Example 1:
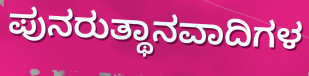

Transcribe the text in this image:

ಪುನರುತ್ಥಾನವಾದಿಗಳ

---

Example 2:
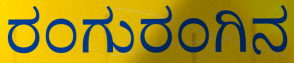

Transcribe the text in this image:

ರಂಗುರಂಗಿನ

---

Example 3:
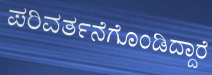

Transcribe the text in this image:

ಪರಿವರ್ತನೆಗೊಂಡಿದ್ದಾರೆ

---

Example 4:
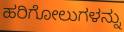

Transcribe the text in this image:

ಹರಿಗೋಲುಗಳನ್ನು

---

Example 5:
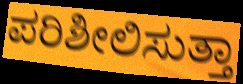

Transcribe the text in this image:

ಪರಿಶೀಲಿಸುತ್ತಾ